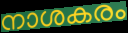
നാശകരം